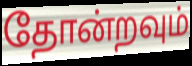
தோன்றவும்